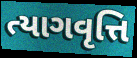
ત્યાગવૃત્તિ